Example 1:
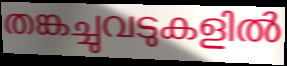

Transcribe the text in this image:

തങ്കച്ചുവടുകളിൽ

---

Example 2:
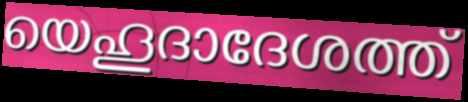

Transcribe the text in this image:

യെഹൂദാദേശത്ത്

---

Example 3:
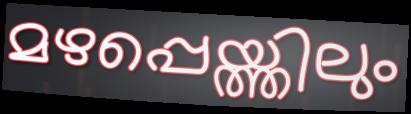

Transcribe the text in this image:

മഴപ്പെയ്ത്തിലും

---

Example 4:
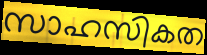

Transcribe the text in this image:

സാഹസികത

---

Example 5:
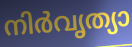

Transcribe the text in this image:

നിർവൃത്യാ